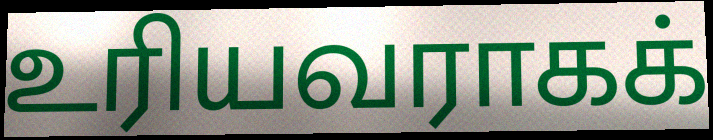
உரியவராகக்